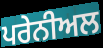
ਪਰੇਨੀਅਲ